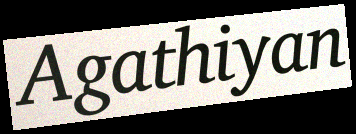
Agathiyan